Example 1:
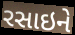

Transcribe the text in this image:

રસાઇને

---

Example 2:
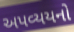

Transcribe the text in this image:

અપવ્યયનો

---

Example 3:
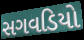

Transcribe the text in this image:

સગવડિયો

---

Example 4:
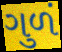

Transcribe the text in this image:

ગુળં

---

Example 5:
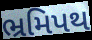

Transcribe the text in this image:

ભ્રમિપથ